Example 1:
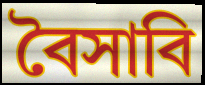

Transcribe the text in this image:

বৈসাবি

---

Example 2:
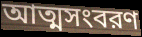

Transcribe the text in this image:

আত্মসংবরণ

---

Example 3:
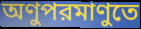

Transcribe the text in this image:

অণুপরমাণুতে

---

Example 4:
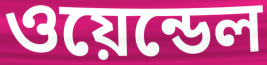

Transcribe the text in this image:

ওয়েন্ডেল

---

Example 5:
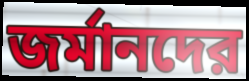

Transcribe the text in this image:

জর্মানদের